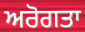
ਅਰੋਗਤਾ